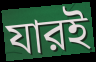
যারই